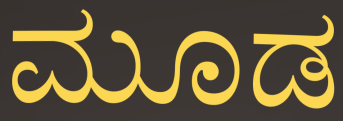
ಮೂಡ